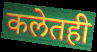
कलेतही